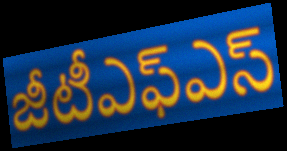
జీటీఎఫ్ఎస్